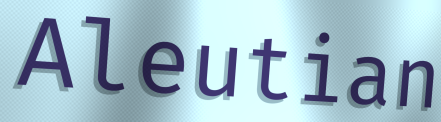
Aleutian